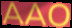
AAO